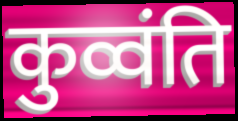
कुव्वंति